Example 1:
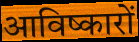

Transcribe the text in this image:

आविष्‍कारों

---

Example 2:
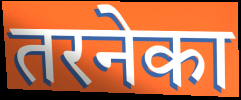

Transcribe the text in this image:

तरनेका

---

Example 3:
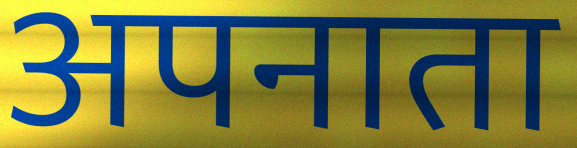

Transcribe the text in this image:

अपनाता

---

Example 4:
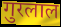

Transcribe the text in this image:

गुरलाल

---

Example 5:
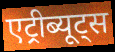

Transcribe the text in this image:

एट्रीब्यूट्स